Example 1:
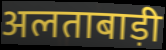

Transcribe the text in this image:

अलताबाड़ी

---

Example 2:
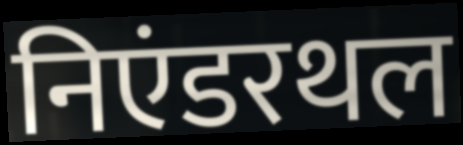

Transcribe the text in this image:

निएंडरथल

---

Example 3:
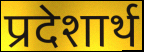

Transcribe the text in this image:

प्रदेशार्थ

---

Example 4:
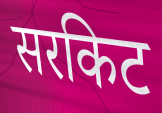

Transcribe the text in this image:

सरकिट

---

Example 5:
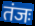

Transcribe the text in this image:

तंजः